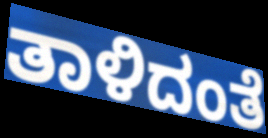
ತಾಳಿದಂತೆ